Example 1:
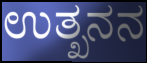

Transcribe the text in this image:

ಉತ್ಖನನ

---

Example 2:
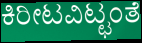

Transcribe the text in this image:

ಕಿರೀಟವಿಟ್ಟಂತೆ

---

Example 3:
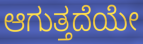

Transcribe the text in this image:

ಆಗುತ್ತದೆಯೇ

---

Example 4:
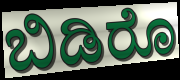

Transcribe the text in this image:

ಬಿಡಿರೊ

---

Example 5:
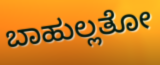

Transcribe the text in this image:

ಬಾಹುಲ್ಲತೋ